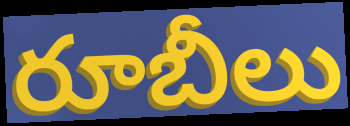
రూబీలు